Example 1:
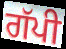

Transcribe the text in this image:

ਗੱਪੀ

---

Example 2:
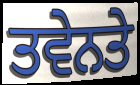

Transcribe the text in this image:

ਤਵੇਨਤੇ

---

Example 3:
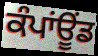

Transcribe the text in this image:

ਕੰਪਾਂਊਂਡ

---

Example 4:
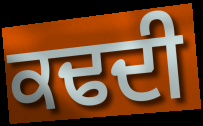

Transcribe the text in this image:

ਕਢਦੀ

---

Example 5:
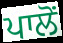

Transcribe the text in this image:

ਪਾਲੋਂ